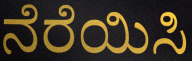
ನೆರೆಯಿಸಿ